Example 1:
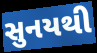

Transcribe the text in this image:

સુનયથી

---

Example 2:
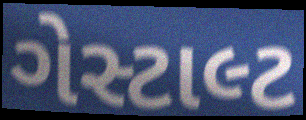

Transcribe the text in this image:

ગેસ્ટાલ્ટ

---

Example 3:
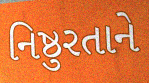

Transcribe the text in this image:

નિષ્ઠુરતાને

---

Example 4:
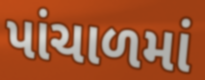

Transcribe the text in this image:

પાંચાળમાં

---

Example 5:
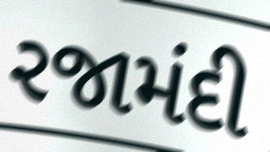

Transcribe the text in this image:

રજામંદી